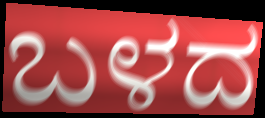
ಬಳದ